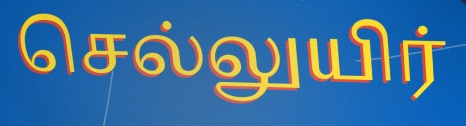
செல்லுயிர்